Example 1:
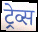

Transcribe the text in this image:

ट्रेव्स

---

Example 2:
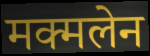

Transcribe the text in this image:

मक्मलेन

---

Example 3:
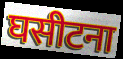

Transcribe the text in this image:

घसीटना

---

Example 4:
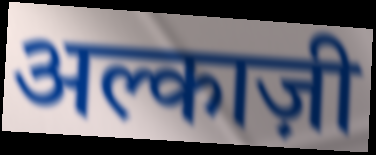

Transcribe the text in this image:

अल्काज़ी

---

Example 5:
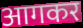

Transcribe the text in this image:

आगकर